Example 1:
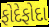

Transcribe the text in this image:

ફોદેફોદા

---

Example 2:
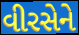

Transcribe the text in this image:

વીરસેને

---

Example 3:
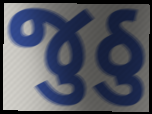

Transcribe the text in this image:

જુઠુ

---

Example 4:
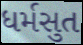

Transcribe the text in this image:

ધર્મસુત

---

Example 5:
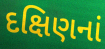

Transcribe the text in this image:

દક્ષિણનાં